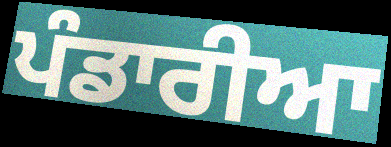
ਪੰਡਾਰੀਆ